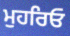
ਮੁਹਰਿਓ